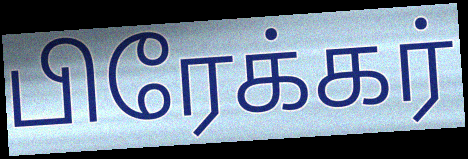
பிரேக்கர்